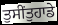
ਤੁਸੀਂਤੁਹਾਡੇ